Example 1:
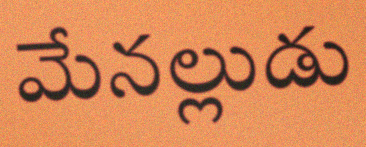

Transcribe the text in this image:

మేనల్లుడు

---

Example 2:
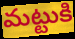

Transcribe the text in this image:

మట్టుకి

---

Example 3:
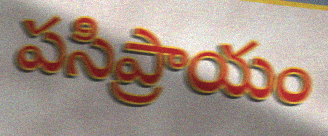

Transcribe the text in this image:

పసిప్రాయం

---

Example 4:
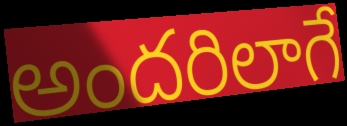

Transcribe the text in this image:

అందరిలాగే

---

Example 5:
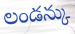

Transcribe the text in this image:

లండన్కు